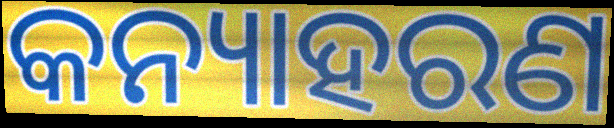
କନ୍ୟାହରଣ